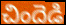
చిందెడి